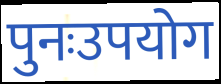
पुनःउपयोग